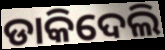
ଡାକିଦେଲି